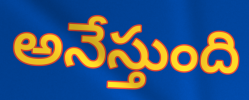
అనేస్తుంది